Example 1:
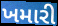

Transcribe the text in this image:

ખમારી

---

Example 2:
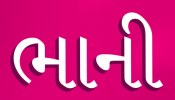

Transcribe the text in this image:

ભાની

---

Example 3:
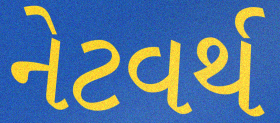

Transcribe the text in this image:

નેટવર્થ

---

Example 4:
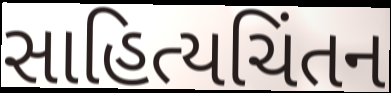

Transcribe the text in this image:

સાહિત્યચિંતન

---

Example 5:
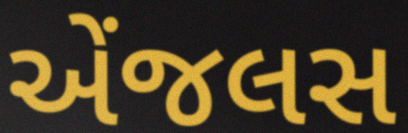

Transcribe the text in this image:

એંજલસ